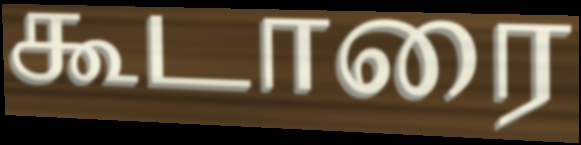
கூடாரை